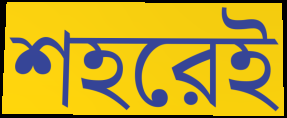
শহরেই